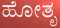
ಹೋತೃ